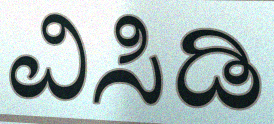
ವಿಸಿಡಿ